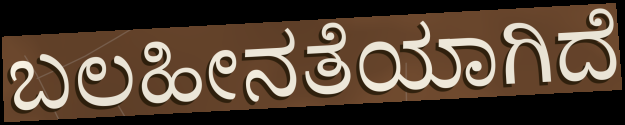
ಬಲಹೀನತೆಯಾಗಿದೆ